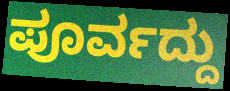
ಪೂರ್ವದ್ದು